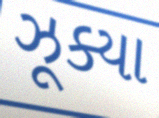
ઝૂક્યા